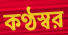
কণ্ঠস্বর